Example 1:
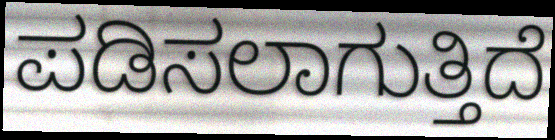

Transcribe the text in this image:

ಪಡಿಸಲಾಗುತ್ತಿದೆ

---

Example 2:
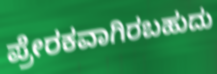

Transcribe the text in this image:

ಪ್ರೇರಕವಾಗಿರಬಹುದು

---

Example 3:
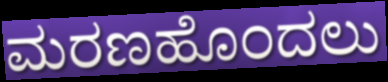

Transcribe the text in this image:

ಮರಣಹೊಂದಲು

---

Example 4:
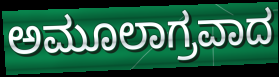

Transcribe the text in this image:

ಅಮೂಲಾಗ್ರವಾದ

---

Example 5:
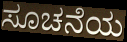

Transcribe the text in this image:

ಸೂಚನೆಯ